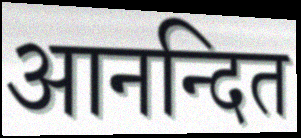
आनन्दित